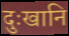
दुःखानि